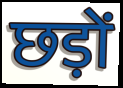
छड़ों